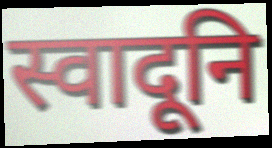
स्वादूनि